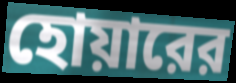
হোয়ারের